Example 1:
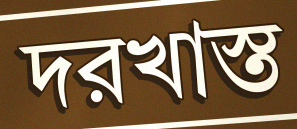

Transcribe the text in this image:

দরখাস্ত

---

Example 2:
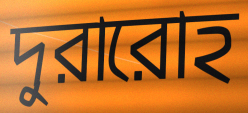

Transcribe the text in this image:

দুরারোহ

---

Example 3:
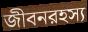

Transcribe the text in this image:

জীবনরহস্য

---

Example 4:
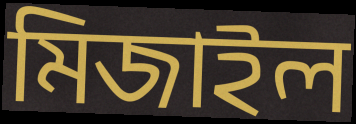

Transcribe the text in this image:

মিজাইল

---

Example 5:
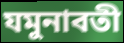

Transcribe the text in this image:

যমুনাবতী